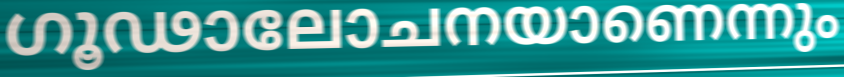
ഗൂഢാലോചനയാണെന്നും